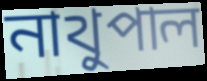
নাথুপাল